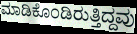
ಮಾಡಿಕೊಂಡಿರುತ್ತಿದ್ದವು